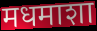
मधमाशा